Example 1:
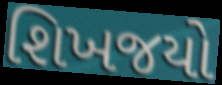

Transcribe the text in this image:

શિખજયો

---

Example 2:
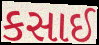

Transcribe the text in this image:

કસાઈ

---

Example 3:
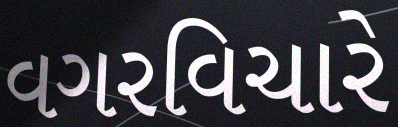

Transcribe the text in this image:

વગરવિચારે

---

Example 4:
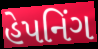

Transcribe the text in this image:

હેપનિંગ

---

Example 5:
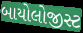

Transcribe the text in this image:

બાયોલોજીસ્ટ